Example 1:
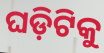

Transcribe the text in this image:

ଘଡ଼ିଟିକୁ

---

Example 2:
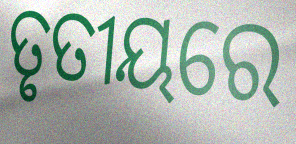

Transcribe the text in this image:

ତୃତୀୟରେ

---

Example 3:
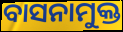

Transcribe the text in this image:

ବାସନାମୁକ୍ତ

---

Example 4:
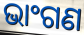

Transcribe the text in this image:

ଭାଂଗଣ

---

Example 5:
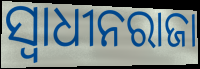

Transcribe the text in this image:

ସ୍ୱାଧୀନରାଜା